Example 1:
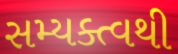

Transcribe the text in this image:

સમ્યક્ત્વથી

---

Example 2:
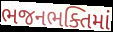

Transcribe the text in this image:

ભજનભક્તિમાં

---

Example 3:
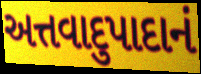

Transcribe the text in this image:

અત્તવાદુપાદાનં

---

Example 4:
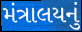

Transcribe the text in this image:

મંત્રાલયનું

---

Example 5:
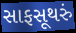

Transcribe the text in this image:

સાફસૂથરું